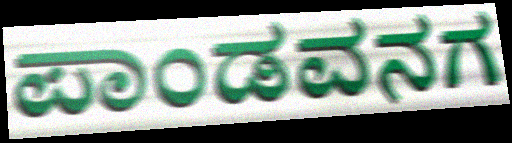
ಪಾಂಡವನಗ